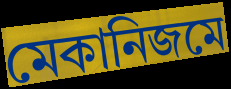
মেকানিজমে